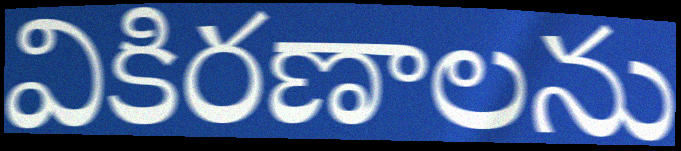
వికిరణాలను